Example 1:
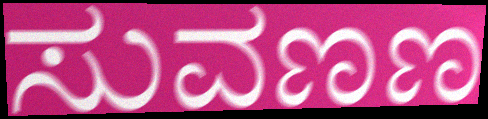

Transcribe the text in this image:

ಸುವಣಣ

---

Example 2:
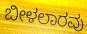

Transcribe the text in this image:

ಬೀಳಲಾರವು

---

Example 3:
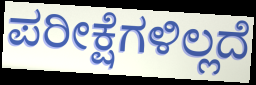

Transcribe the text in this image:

ಪರೀಕ್ಷೆಗಳಿಲ್ಲದೆ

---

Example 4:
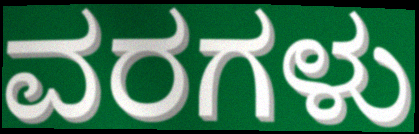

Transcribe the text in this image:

ವರಗಳು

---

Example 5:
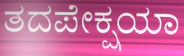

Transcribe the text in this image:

ತದಪೇಕ್ಷಯಾ